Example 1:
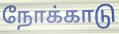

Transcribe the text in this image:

நோக்காடு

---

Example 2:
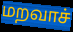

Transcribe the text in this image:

மறவாச்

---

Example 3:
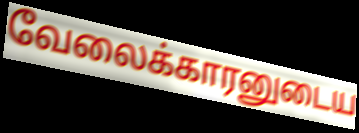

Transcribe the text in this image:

வேலைக்காரனுடைய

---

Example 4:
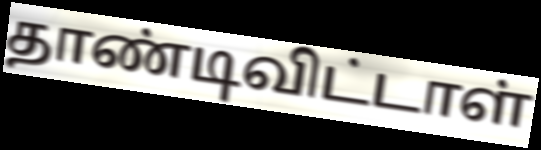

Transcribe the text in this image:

தாண்டிவிட்டாள்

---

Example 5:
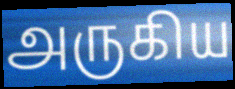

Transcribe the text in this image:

அருகிய